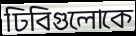
ঢিবিগুলোকে